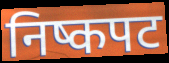
निष्कपट